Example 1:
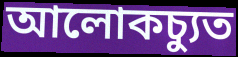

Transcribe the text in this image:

আলোকচ্যুত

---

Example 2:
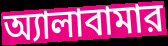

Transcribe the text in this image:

অ্যালাবামার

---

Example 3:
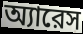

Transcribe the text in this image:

অ্যারেস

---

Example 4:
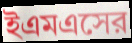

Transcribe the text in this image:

ইএমএসের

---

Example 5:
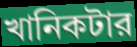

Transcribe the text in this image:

খানিকটার